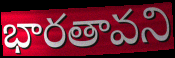
భారతావని